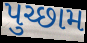
પુચ્છામ